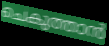
ചെകുത്താൻ